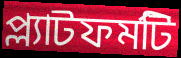
প্ল্যাটফর্মটি